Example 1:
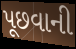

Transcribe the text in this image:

પૂછવાની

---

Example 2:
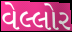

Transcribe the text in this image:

વેલ્લોર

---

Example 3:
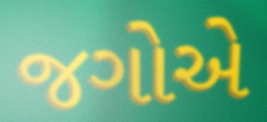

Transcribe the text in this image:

જગોએ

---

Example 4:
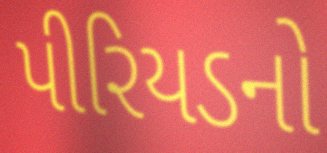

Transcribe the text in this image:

પીરિયડનો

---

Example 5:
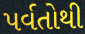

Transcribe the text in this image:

પર્વતોથી